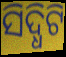
ସିଦ୍ଧିଟି